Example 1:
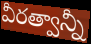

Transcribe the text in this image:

వీరత్వాన్నీ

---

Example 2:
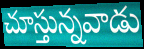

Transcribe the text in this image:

చూస్తున్నవాడు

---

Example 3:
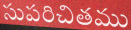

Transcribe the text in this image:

సుపరిచితము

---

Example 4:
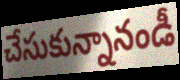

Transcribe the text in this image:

చేసుకున్నానండీ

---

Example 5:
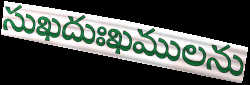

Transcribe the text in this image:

సుఖదుఃఖములను